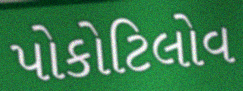
પોકોટિલોવ